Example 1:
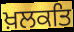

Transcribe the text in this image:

ਖ਼ਲਕਤਿ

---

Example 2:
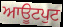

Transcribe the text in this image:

ਆਊਟਪੁਟ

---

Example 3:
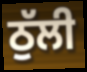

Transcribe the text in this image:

ਠੁੱਲੀ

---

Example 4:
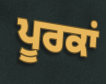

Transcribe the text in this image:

ਪੂਰਕਾਂ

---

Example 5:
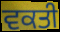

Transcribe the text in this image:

ਵਕਤੀ